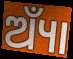
ଅ୍ୟାଁ